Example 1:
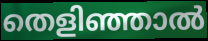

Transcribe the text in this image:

തെളിഞ്ഞാൽ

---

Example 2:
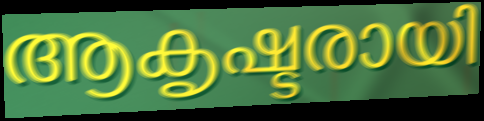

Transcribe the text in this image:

ആകൃഷ്ടരായി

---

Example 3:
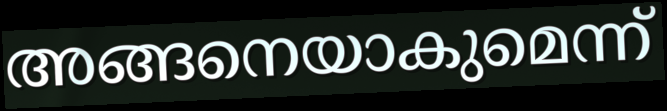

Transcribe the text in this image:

അങ്ങനെയാകുമെന്ന്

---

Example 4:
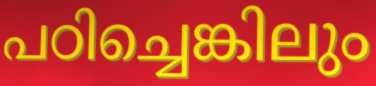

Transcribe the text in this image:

പഠിച്ചെങ്കിലും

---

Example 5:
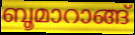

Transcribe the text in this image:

ബൂമാറാങ്ങ്